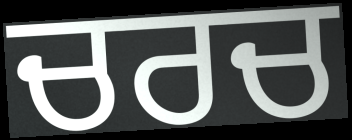
ਚਰਚ